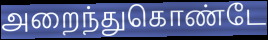
அறைந்துகொண்டே